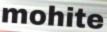
mohite